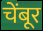
चेंबूर